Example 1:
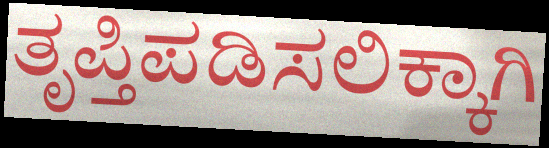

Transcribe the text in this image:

ತೃಪ್ತಿಪಡಿಸಲಿಕ್ಕಾಗಿ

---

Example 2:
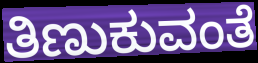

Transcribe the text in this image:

ತಿಣುಕುವಂತೆ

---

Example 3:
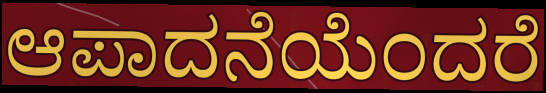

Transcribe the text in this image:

ಆಪಾದನೆಯೆಂದರೆ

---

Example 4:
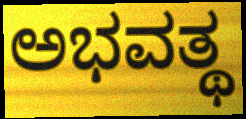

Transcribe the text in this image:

ಅಭವತ್ಥ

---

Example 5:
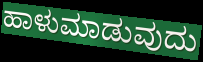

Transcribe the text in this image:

ಹಾಳುಮಾಡುವುದು